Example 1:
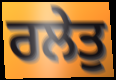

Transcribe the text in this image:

ਰਲੇਤੁ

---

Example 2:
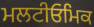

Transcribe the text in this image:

ਮਲਟੀਓਮਿਕ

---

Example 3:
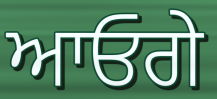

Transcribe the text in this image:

ਆਓਗੇ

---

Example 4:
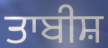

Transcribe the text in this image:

ਤਾਬੀਸ਼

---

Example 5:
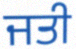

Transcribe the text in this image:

ਜਤੀ